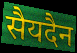
सैयदैन